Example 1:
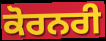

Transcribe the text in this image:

ਕੋਰਨਰੀ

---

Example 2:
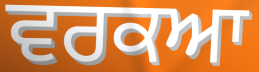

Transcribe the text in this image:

ਵਰਕਆ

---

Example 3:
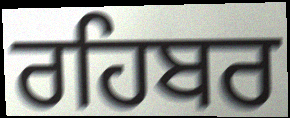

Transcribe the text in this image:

ਰਹਿਬਰ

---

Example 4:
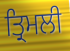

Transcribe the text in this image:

ਤ੍ਰਿਮਲੀ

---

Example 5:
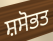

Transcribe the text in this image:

ਸ਼ਸੋਭਤ